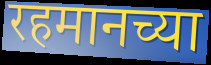
रहमानच्या